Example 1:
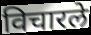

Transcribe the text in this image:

विचारले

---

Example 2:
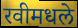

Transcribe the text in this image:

रवीमधले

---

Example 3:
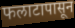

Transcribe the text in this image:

फलाटापासून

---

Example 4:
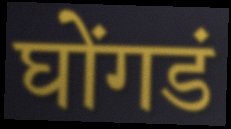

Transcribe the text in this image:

घोंगडं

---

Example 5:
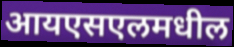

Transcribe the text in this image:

आयएसएलमधील